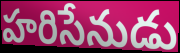
హరిసేనుడు